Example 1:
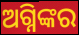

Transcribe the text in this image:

ଅଗ୍ନିଙ୍କର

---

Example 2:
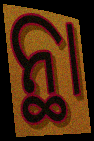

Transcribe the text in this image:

ନ୍ଥା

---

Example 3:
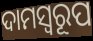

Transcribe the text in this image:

ଦାମସ୍ୱରୂପ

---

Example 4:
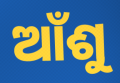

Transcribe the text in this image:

ଆଁଶୁ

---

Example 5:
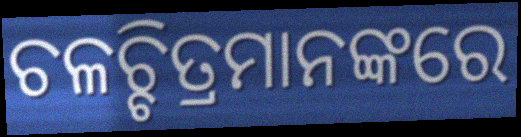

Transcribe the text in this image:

ଚଳଚ୍ଚିତ୍ରମାନଙ୍କରେ